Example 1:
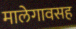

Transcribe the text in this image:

मालेगावसह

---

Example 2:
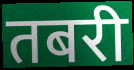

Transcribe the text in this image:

तबरी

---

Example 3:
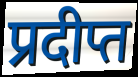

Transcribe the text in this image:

प्रदीप्त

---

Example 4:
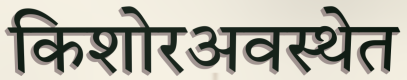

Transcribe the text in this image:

किशोरअवस्थेत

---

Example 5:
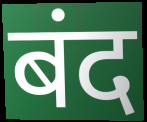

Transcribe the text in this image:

बंद